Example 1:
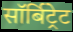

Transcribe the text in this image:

सॉर्बिट्रेट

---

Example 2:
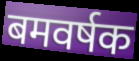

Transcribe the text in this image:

बमवर्षक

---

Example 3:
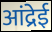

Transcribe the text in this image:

आंद्रेई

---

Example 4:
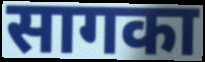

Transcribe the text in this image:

सागका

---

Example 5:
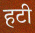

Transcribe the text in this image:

हटी